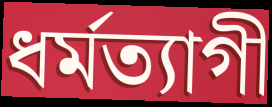
ধর্মত্যাগী